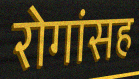
रोगांसह